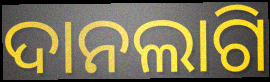
ଦାନଲାଗି